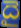
దై